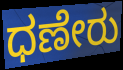
ಧಣೇರು